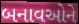
બનાવઓને